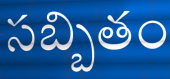
సబ్బితం